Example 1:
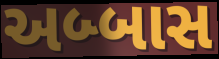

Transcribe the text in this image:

અબ્બાસ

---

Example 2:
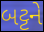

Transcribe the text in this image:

બટ્ટને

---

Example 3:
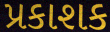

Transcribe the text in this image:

પ્રકાશક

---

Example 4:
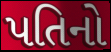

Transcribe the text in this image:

પતિનો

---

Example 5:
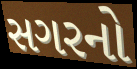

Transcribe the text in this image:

સગરનો